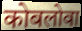
कोबलोवा